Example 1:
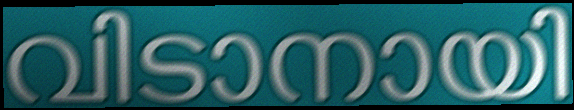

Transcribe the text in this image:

വിടാനായി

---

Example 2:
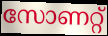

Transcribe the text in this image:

സോണറ്റ്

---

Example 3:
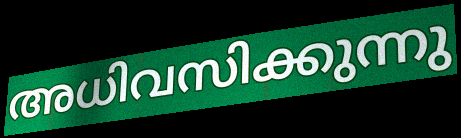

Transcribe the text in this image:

അധിവസിക്കുന്നു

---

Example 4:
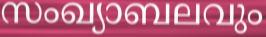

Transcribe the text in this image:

സംഖ്യാബലവും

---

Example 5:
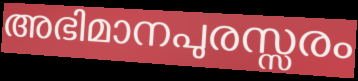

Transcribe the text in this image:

അഭിമാനപുരസ്സരം